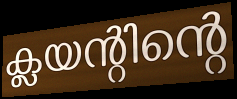
ക്ലയന്റിന്റെ